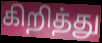
கிறித்து